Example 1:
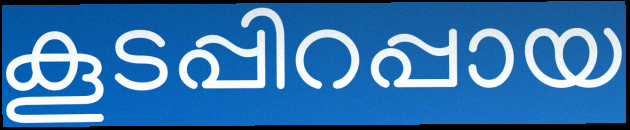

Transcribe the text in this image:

കൂടപ്പിറപ്പായ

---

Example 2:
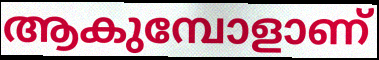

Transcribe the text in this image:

ആകുമ്പോളാണ്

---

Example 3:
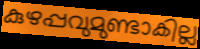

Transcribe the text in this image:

കുഴപ്പവുമുണ്ടാകില്ല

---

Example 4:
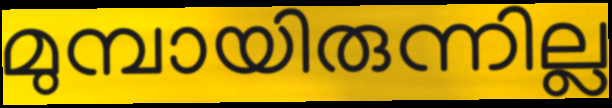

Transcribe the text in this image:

മുമ്പായിരുന്നില്ല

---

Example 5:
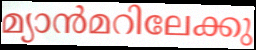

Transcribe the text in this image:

മ്യാൻമറിലേക്കു